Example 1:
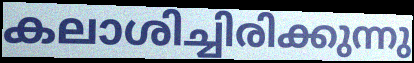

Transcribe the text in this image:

കലാശിച്ചിരിക്കുന്നു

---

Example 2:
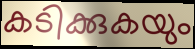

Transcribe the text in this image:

കടിക്കുകയും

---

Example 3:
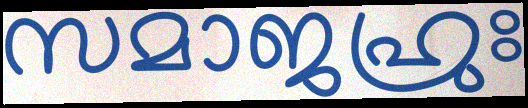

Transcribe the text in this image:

സമാജഹ്രുഃ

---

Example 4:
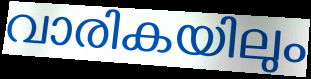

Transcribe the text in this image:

വാരികയിലും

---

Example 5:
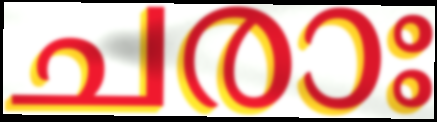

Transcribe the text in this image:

ചരാഃ